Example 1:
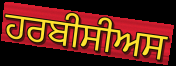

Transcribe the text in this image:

ਹਰਬੀਸੀਅਸ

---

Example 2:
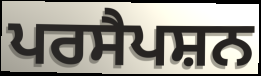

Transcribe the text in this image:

ਪਰਸੈਪਸ਼ਨ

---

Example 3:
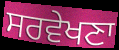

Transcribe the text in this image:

ਸਰਵੇਖਣਾ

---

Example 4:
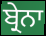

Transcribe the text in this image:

ਬ੍ਰੇਨਾ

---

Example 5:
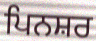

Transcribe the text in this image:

ਪਿਨਸ਼ਰ